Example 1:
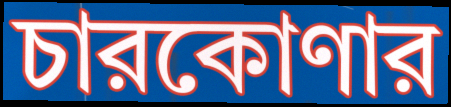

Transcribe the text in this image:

চারকোণার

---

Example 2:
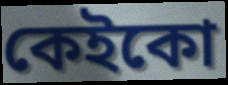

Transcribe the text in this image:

কেইকো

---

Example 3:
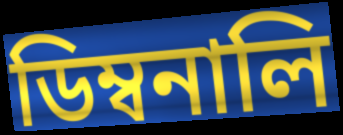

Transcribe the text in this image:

ডিম্বনালি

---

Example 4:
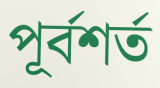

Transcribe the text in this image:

পূর্বশর্ত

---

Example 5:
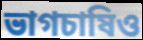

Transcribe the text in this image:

ভাগচাষিও